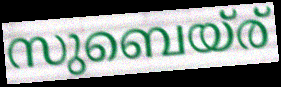
സുബെയ്ര്